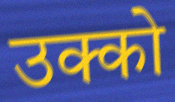
उक्को